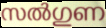
സൽഗുണ